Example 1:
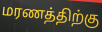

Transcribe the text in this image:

மரணத்திற்கு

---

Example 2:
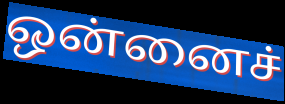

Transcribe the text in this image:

ஒன்னைச்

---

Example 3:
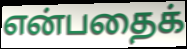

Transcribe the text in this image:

என்பதைக்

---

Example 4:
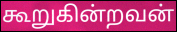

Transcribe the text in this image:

கூறுகின்றவன்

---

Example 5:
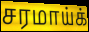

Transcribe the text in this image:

சரமாய்க்